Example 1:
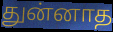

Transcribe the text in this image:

துன்னாத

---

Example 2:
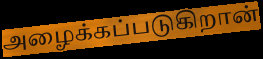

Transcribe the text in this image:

அழைக்கப்படுகிறான்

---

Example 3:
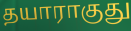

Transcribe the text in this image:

தயாராகுது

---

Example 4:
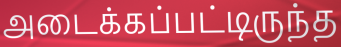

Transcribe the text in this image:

அடைக்கப்பட்டிருந்த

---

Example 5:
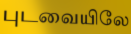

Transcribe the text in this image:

புடவையிலே